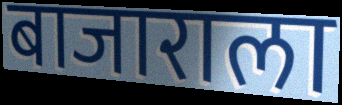
बाजाराला